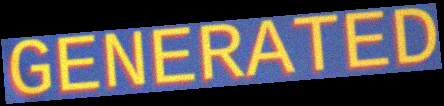
GENERATED